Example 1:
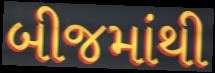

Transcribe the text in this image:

બીજમાંથી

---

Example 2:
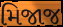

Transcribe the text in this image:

મિજાજ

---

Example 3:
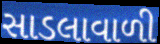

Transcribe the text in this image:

સાડલાવાળી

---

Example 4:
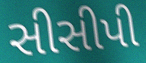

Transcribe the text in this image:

સીસીપી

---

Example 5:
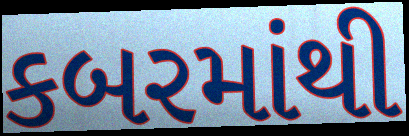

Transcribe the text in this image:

કબરમાંથી